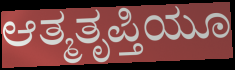
ಆತ್ಮತೃಪ್ತಿಯೂ